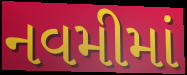
નવમીમાં